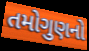
તમોગુણનો